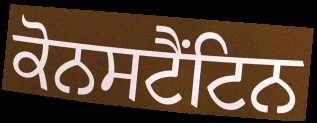
ਕੋਨਸਟੈਂਟਿਨ